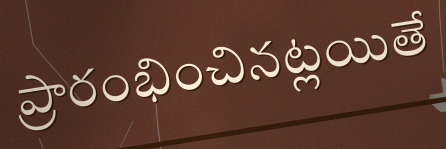
ప్రారంభించినట్లయితే